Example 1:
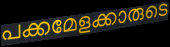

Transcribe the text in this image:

പക്കമേളക്കാരുടെ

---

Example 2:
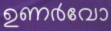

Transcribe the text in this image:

ഉണർവോ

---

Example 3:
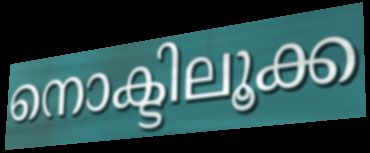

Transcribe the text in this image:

നൊക്ടിലൂക്ക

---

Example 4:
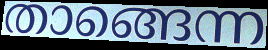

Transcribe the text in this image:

താങ്ങെന്ന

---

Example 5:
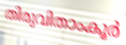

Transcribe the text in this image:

തിരുവിതാംകൂർ